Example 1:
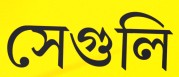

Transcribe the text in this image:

সেগুলি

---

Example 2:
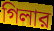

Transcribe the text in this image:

গিলার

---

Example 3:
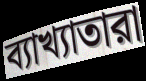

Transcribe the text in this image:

ব্যাখ্যাতারা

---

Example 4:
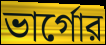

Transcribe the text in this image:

ভার্গোর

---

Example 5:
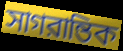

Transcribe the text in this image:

সাগরান্তিক